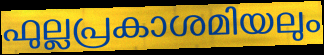
ഫുല്ലപ്രകാശമിയലും